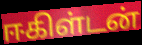
ஈகிள்டன்